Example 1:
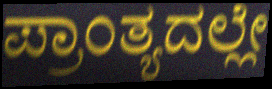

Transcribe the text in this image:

ಪ್ರಾಂತ್ಯದಲ್ಲೇ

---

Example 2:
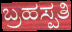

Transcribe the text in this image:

ಬ್ರಹಸ್ಪತಿ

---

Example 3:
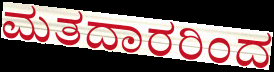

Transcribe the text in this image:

ಮತದಾರರಿಂದ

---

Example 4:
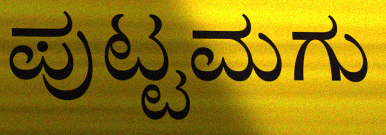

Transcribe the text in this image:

ಪುಟ್ಟಮಗು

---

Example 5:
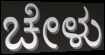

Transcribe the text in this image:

ಚೇಳು